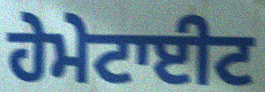
ਹੇਮੇਟਾਈਟ